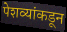
पेशव्यांकडून